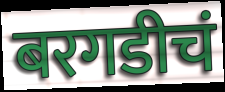
बरगडीचं